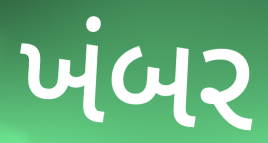
ખંબર